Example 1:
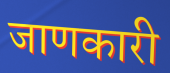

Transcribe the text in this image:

जाणकारी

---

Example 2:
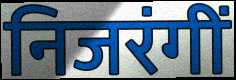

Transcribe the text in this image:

निजरंगीं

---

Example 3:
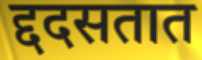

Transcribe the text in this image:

द्ददसतात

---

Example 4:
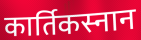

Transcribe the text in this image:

कार्तिकस्नान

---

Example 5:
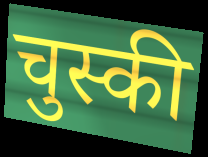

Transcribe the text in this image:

चुस्की